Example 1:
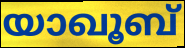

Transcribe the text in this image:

യാഖൂബ്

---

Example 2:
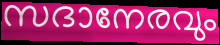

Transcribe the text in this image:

സദാനേരവും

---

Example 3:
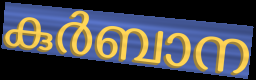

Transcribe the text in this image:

കുർബാന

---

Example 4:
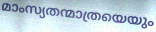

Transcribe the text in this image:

മാംസ്യതന്മാത്രയെയും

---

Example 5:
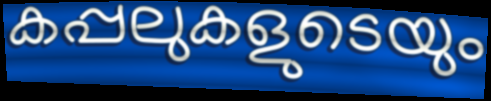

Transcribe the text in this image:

കപ്പലുകളുടെയും